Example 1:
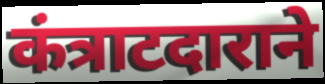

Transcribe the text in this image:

कंत्राटदाराने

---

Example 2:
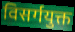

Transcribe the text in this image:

विसर्गयुक्त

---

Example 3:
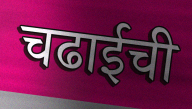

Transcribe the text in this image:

चढाईची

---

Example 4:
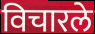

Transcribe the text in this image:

विचारले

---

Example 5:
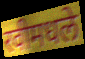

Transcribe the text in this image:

रवीमधले